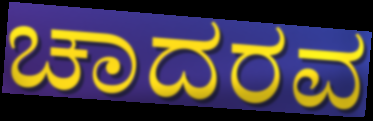
ಚಾದರವ